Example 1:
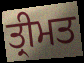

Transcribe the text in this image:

ਤ੍ਰੀਮਤ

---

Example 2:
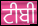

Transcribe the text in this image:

ਟੀਬੀ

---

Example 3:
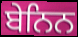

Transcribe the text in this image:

ਬੇਨਿਨ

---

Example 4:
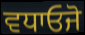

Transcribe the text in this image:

ਵਧਾਓਜੋ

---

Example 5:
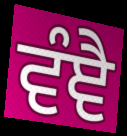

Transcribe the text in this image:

ਵੰਞੈ